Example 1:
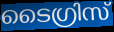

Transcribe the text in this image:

ടൈഗ്രിസ്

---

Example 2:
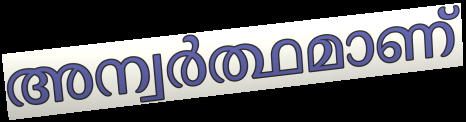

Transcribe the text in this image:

അന്വർത്ഥമാണ്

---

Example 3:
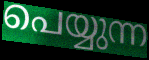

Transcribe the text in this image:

പെയ്യുന്ന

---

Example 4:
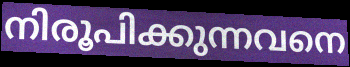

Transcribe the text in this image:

നിരൂപിക്കുന്നവനെ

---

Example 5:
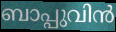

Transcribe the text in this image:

ബാപ്പുവിൻ